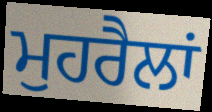
ਮੁਹਰੈਲਾਂ